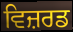
ਵਿਜ਼ਰਡ